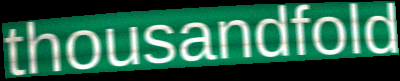
thousandfold